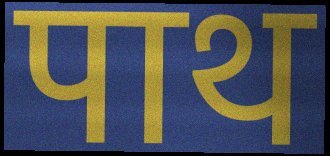
पाथ